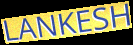
LANKESH